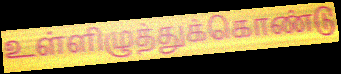
உள்ளிழுத்துக்கொண்டு